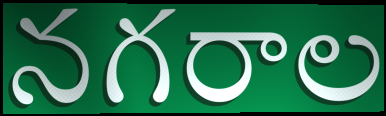
నగరాల